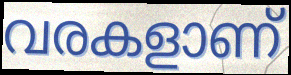
വരകളാണ്